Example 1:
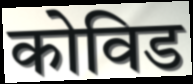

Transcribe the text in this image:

कोविड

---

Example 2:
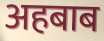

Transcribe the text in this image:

अहबाब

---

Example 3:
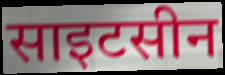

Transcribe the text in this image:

साइटसीन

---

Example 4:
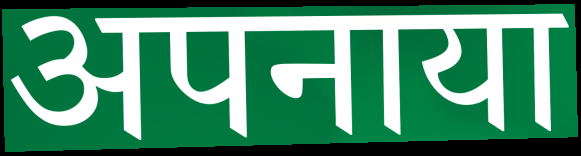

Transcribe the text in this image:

अपनाया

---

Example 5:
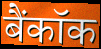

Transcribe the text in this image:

बैंकॉक